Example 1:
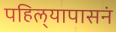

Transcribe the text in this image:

पहिल्यापासनं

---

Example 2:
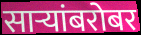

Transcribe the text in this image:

साऱ्यांबरोबर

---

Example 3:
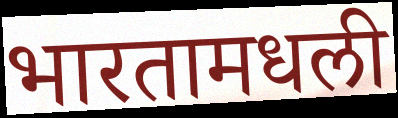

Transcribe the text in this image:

भारतामधली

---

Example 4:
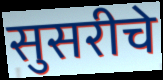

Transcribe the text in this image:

सुसरीचे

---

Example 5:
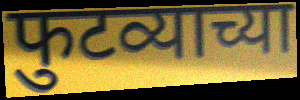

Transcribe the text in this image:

फुटव्याच्या